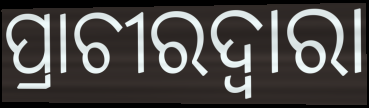
ପ୍ରାଚୀରଦ୍ୱାରା